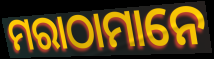
ମରାଠାମାନେ